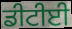
ਡੀਟੀਈ